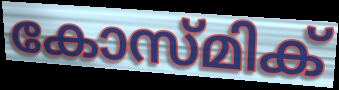
കോസ്മിക്